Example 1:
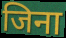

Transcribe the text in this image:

जिना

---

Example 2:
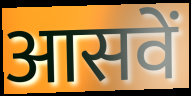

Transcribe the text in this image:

आसवें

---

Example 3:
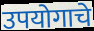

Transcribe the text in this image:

उपयोगाचे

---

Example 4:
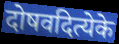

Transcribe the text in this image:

दोषवदित्येके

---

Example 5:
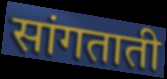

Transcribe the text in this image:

सांगताती